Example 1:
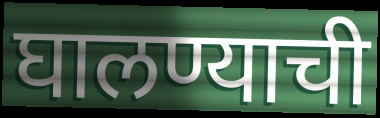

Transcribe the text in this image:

घालण्याची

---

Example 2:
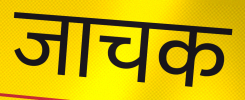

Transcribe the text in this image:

जाचक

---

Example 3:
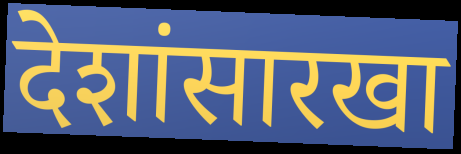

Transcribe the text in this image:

देशांसारखा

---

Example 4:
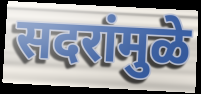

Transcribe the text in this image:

सदरांमुळे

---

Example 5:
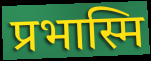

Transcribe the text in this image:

प्रभास्मि